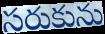
సరుకును